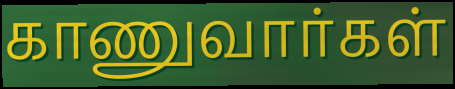
காணுவார்கள்